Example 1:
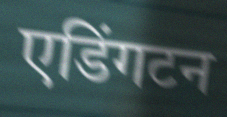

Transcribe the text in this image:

एडिंगटन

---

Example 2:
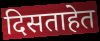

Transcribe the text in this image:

दिसताहेत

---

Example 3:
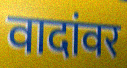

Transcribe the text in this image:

वादांवर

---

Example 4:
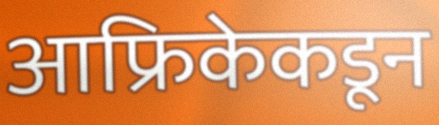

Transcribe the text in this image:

आफ्रिकेकडून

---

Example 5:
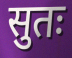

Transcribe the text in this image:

सुतः